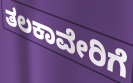
ತಲಕಾವೇರಿಗೆ